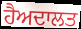
ਹੈਅਦਾਲਤ